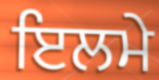
ਇਲਮੇ